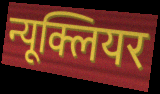
न्यूक्लियर